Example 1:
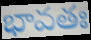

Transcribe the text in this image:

భావతః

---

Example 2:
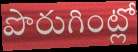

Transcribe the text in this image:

పొరుగింట్లో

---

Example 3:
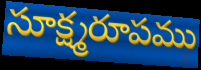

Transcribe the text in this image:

సూక్ష్మరూపము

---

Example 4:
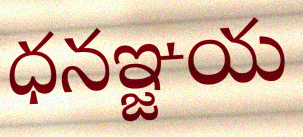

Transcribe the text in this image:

ధనఞ్జయ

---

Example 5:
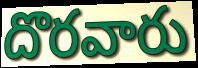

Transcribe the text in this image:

దొరవారు